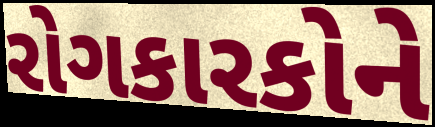
રોગકારકોને